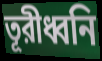
তূরীধ্বনি